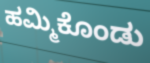
ಹಮ್ಮಿಕೊಂಡು